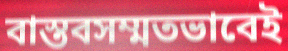
বাস্তবসম্মতভাবেই